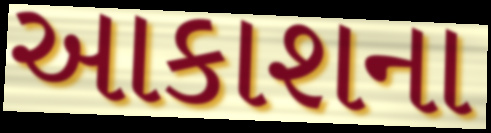
આકાશના